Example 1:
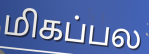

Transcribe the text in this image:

மிகப்பல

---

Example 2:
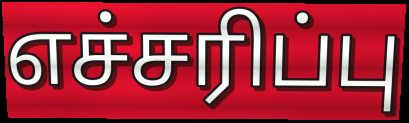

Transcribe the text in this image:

எச்சரிப்பு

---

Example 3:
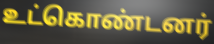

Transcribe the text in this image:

உட்கொண்டனர்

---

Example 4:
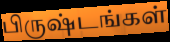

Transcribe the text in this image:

பிருஷ்டங்கள்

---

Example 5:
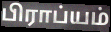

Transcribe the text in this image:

பிராப்யம்